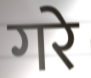
गरे